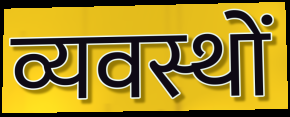
व्यवस्थों